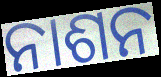
ନାଶନ